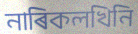
নাৰিকলখিনি